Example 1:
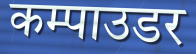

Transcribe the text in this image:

कम्पाउडर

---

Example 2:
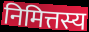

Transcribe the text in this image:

निमित्तस्य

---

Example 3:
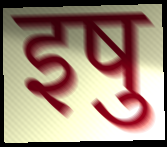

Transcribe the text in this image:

इषु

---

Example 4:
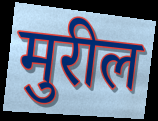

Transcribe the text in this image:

मुरील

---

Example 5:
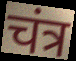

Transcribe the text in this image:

चंत्र